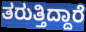
ತರುತ್ತಿದ್ದಾರೆ